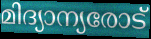
മിദ്യാന്യരോട്